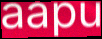
aapu